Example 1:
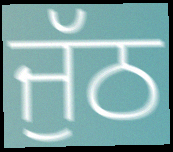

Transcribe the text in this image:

ਜੁੱਠ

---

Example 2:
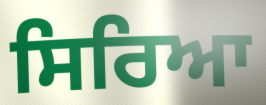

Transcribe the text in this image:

ਸਿਰਿਆ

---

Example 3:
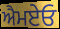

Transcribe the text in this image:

ਐਮਏਓ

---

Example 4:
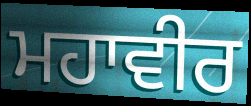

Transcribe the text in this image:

ਮਹਾਵੀਰ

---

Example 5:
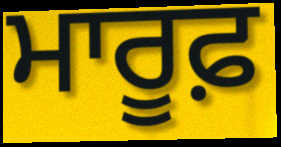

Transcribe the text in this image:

ਮਾਰੂਫ਼